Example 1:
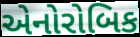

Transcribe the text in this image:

એનોરોબિક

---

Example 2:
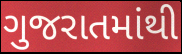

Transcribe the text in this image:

ગુજરાતમાંથી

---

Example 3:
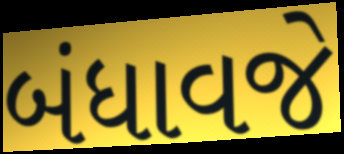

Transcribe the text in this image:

બંધાવજે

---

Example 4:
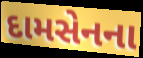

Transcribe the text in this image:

દામસેનના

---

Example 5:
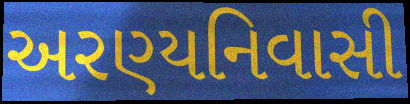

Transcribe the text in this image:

અરણ્યનિવાસી